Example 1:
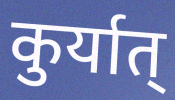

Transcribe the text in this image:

कुर्यात्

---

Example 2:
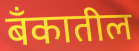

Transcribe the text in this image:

बँकातील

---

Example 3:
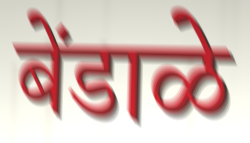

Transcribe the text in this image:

बेंडाळे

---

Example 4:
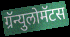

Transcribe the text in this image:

ग्रॅन्युलोमॅटस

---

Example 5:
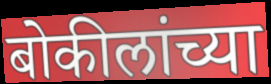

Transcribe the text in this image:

बोकीलांच्या